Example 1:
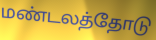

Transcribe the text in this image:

மண்டலத்தோடு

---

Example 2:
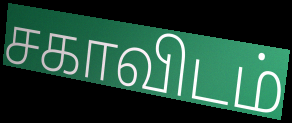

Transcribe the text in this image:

சகாவிடம்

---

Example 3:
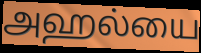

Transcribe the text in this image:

அஹல்யை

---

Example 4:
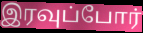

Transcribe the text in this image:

இரவுப்போர்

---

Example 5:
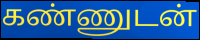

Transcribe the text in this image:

கண்ணுடன்